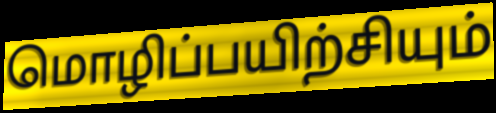
மொழிப்பயிற்சியும்